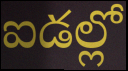
ఐడల్లో